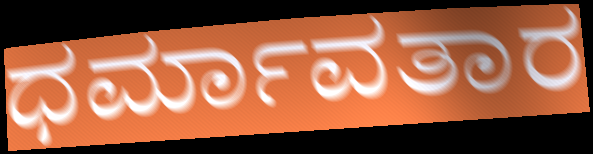
ಧರ್ಮಾವತಾರ